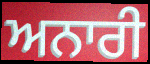
ਅਨਾਰੀ